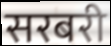
सरबरी